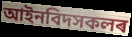
আইনবিদসকলৰ